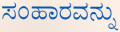
ಸಂಹಾರವನ್ನು